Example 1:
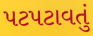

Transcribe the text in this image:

પટપટાવતું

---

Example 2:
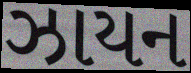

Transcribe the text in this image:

ઝાયન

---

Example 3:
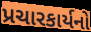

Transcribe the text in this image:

પ્રચારકાર્યનો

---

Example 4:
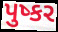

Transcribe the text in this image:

પુષ્કર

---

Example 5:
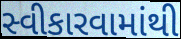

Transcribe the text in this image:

સ્વીકારવામાંથી